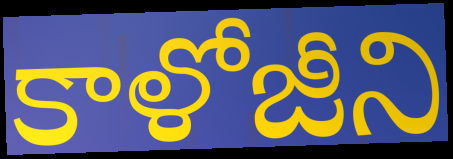
కాళోజీని